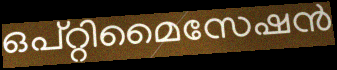
ഒപ്റ്റിമൈസേഷൻ